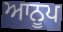
ਆਨੂਪ